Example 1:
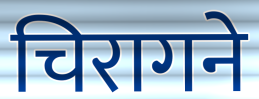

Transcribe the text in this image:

चिरागने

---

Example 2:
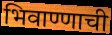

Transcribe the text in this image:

भिवाण्णाची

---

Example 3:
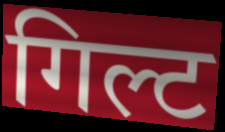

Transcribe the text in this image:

गिल्ट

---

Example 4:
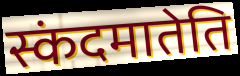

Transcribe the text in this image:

स्कंदमातेति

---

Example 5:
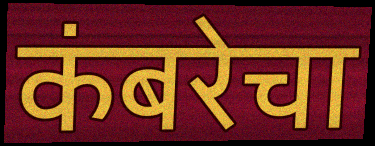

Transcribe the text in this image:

कंबरेचा